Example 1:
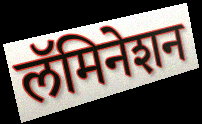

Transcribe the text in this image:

लॅमिनेशन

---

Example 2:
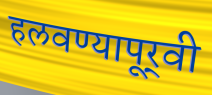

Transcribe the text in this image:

हलवण्यापूर्वी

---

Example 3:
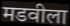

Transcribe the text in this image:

मडवीला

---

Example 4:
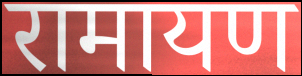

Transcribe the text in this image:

रामायण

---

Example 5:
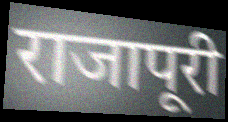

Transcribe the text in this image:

राजापूरी